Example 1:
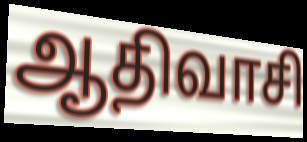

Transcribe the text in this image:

ஆதிவாசி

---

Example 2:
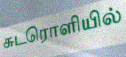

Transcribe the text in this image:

சுடரொளியில்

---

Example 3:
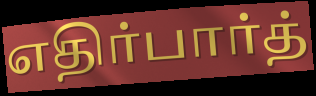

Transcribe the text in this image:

எதிர்பார்த்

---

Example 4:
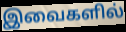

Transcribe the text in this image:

இவைகளில்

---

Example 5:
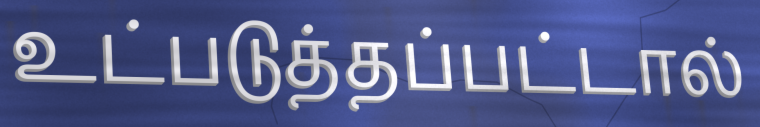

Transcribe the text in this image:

உட்படுத்தப்பட்டால்